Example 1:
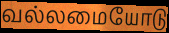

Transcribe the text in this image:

வல்லமையோடு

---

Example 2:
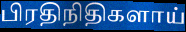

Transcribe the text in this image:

பிரதிநிதிகளாய்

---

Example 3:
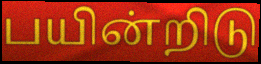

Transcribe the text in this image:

பயின்றிடு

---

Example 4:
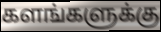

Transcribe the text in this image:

களங்களுக்கு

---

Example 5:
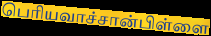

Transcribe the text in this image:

பெரியவாச்சான்பிள்ளை